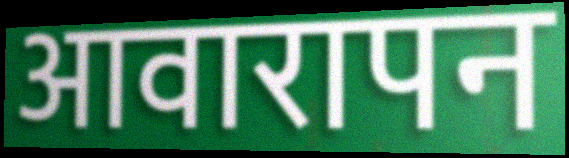
आवारापन